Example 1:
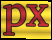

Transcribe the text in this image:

px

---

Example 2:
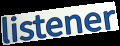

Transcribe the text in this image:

listener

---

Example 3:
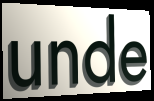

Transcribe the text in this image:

unde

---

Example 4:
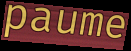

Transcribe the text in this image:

paume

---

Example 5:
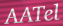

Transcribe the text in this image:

AATel